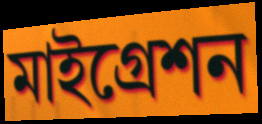
মাইগ্রেশন